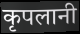
कृपलानी